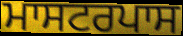
ਮਾਸਟਰਪਾਸ